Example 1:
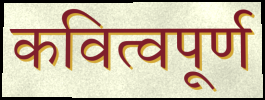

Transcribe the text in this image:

कवित्वपूर्ण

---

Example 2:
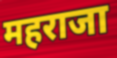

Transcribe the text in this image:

महराजा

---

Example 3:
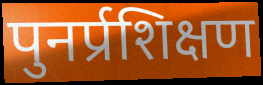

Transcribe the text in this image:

पुनर्प्रशिक्षण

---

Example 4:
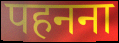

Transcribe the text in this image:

पहनना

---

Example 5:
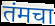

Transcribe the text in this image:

तंमचा